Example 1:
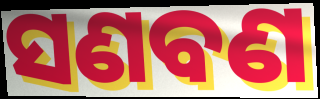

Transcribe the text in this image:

ସଣବଣ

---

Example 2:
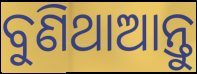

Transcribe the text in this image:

ବୁଣିଥାଆନ୍ତୁ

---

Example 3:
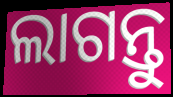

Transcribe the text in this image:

ଲାଗନ୍ତୁ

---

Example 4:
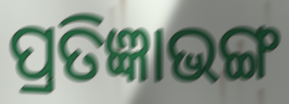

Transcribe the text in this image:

ପ୍ରତିଜ୍ଞାଭଙ୍ଗ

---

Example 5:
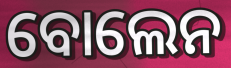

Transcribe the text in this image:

ବୋଲେନ